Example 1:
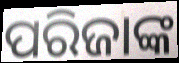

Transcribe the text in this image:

ପରିଜାଙ୍କ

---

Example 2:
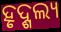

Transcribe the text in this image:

ହୃଦ୍ଶଲ୍ୟ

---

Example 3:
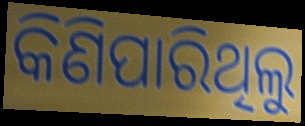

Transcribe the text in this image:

କିଣିପାରିଥିଲୁ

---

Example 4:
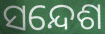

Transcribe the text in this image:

ସନ୍ଦେଶ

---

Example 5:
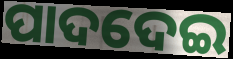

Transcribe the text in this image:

ପାଦଦେଇ